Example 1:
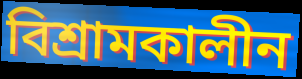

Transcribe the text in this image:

বিশ্রামকালীন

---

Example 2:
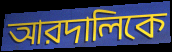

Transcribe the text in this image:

আরদালিকে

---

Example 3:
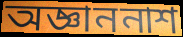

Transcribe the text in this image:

অজ্ঞাননাশ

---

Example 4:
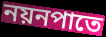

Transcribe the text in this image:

নয়নপাতে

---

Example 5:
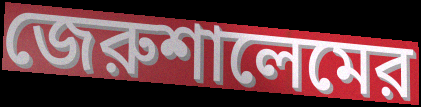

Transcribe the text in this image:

জেরুশালেমের